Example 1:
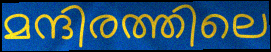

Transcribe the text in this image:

മന്ദിരത്തിലെ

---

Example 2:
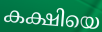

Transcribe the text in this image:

കക്ഷിയെ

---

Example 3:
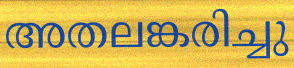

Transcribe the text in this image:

അതലങ്കരിച്ചു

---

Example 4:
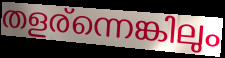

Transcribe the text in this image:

തളര്ന്നെങ്കിലും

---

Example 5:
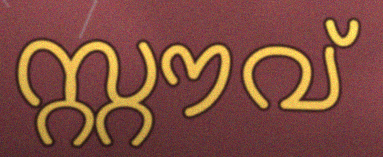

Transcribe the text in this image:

സ്റ്റൗവ്